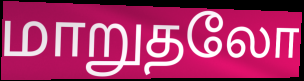
மாறுதலோ